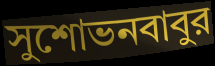
সুশোভনবাবুর